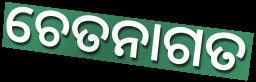
ଚେତନାଗତ